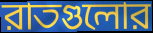
রাতগুলোর